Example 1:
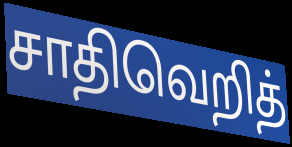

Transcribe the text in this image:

சாதிவெறித்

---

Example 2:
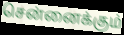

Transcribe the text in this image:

சென்னைக்கும்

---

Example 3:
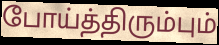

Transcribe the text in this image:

போய்த்திரும்பும்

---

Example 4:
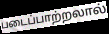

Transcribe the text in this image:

படைப்பாற்றலால்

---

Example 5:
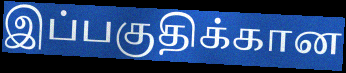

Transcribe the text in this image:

இப்பகுதிக்கான